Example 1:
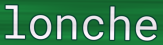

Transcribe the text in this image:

lonche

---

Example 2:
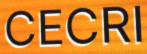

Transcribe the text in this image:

CECRI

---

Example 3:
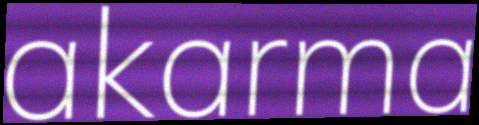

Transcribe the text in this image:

akarma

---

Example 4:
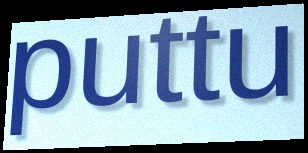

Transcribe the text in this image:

puttu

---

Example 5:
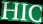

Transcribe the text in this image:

HIC